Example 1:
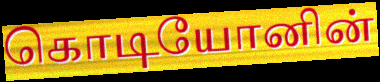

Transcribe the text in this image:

கொடியோனின்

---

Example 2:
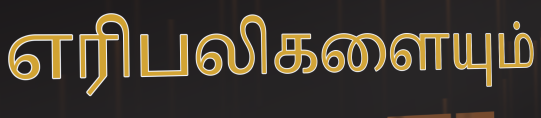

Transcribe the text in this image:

எரிபலிகளையும்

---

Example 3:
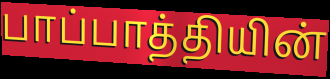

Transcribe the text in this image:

பாப்பாத்தியின்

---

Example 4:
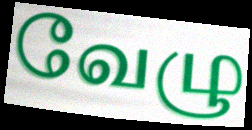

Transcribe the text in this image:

வேழு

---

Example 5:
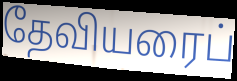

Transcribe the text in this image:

தேவியரைப்